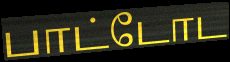
பாட்டோட